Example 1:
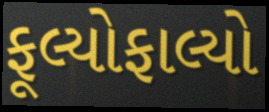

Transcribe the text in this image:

ફૂલ્યોફાલ્યો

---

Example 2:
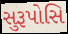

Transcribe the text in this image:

સુરૂપોસિ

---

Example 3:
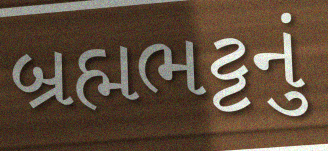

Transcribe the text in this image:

બ્રહ્મભટ્ટનું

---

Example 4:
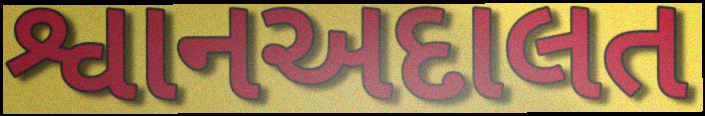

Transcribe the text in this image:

શ્વાનઅદાલત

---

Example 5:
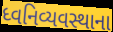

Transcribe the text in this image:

ધ્વનિવ્યવસ્થાના